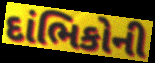
દાંભિકોની